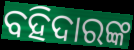
ବହିଦାରଙ୍କ